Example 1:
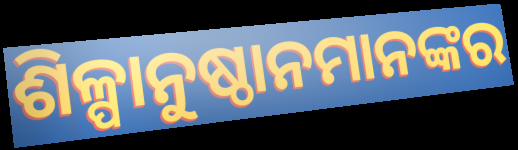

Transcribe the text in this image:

ଶିଳ୍ପାନୁଷ୍ଠାନମାନଙ୍କର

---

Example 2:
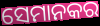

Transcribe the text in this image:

ସେମାନକର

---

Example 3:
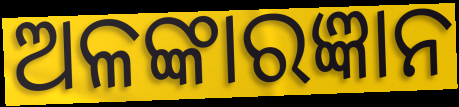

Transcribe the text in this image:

ଅଳଙ୍କାରଜ୍ଞାନ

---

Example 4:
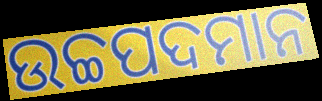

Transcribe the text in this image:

ଉଚ୍ଚପଦମାନ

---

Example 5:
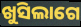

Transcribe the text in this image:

ଖୁସିଲାଗେ